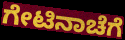
ಗೇಟಿನಾಚೆಗೆ